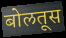
बोलतूस